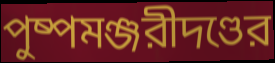
পুষ্পমঞ্জরীদণ্ডের